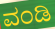
ವಂಡಿ